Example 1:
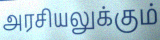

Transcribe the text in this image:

அரசியலுக்கும்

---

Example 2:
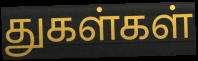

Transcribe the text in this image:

துகள்கள்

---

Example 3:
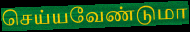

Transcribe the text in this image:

செய்யவேண்டுமா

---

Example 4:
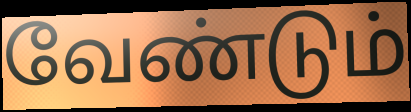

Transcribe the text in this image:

வேண்டும்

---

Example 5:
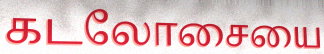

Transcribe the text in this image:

கடலோசையை